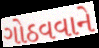
ગોઠવવાને